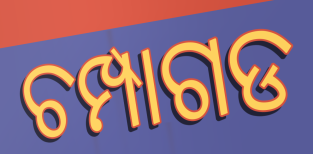
ଚମ୍ପାଗଡ